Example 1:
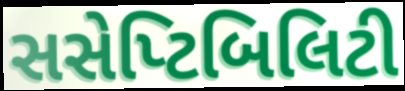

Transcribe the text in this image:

સસેપ્ટિબિલિટી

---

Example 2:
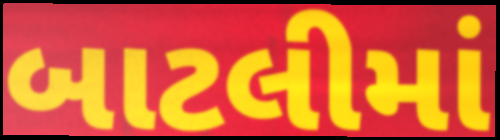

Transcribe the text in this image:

બાટલીમાં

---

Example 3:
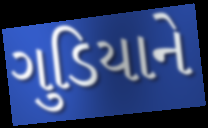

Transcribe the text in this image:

ગુડિયાને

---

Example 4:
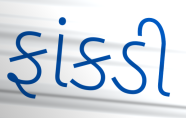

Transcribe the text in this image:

ફાંકડી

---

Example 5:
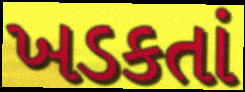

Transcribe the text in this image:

ખડકતાં